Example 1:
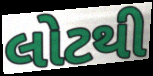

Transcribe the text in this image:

લોટથી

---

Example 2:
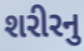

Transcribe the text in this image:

શરીરનુ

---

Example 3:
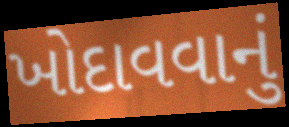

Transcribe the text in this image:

ખોદાવવાનું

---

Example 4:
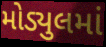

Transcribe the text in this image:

મોડ્યુલમાં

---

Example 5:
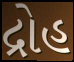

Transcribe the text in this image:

દ્રોહ